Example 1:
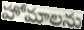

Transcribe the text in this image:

హోమాలను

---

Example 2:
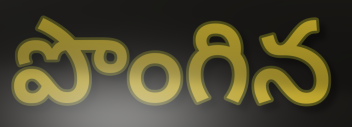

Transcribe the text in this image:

పొంగిన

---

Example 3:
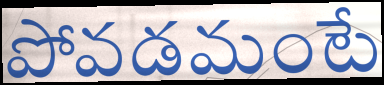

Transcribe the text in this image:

పోవడమంటే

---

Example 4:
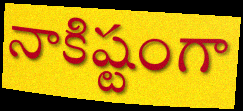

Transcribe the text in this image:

నాకిష్టంగా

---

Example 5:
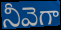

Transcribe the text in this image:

నీవెగా